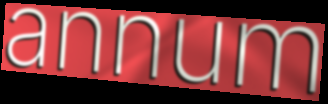
annum